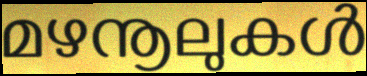
മഴനൂലുകൾ